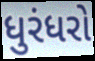
ધુરંધરો